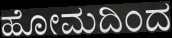
ಹೋಮದಿಂದ